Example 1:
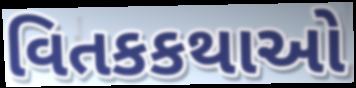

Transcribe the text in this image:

વિતકકથાઓ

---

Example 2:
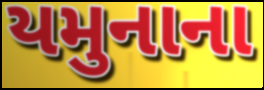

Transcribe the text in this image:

યમુનાના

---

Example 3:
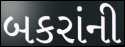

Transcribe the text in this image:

બકરાંની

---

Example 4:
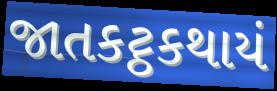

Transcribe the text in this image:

જાતકટ્ઠકથાયં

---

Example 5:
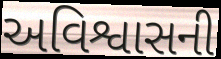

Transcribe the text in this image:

અવિશ્વાસની